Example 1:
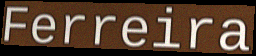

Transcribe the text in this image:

Ferreira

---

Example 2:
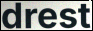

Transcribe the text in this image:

drest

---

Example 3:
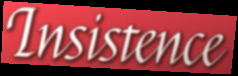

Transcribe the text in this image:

Insistence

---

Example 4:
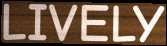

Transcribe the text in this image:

LIVELY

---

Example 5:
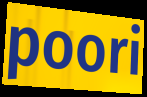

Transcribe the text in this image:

poori